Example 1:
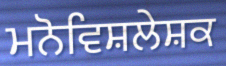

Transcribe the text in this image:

ਮਨੋਵਿਸ਼ਲੇਸ਼ਕ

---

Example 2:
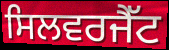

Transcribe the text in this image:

ਸਿਲਵਰਜੈੱਟ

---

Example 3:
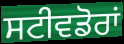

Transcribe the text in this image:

ਸਟੀਵਡੋਰਾਂ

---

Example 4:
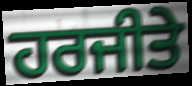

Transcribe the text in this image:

ਹਰਜੀਤੇ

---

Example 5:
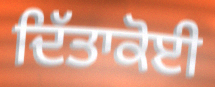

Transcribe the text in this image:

ਦਿੱਤਾਕੋਈ